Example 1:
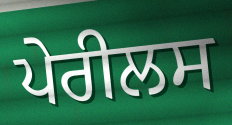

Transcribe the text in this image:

ਪੇਰੀਲਸ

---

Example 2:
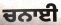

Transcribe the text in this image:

ਚਨਾਈ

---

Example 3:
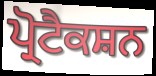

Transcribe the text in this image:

ਪ੍ਰੋਟੈਕਸ਼ਨ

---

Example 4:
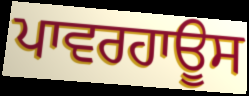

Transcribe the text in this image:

ਪਾਵਰਹਾਊਸ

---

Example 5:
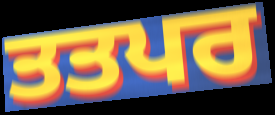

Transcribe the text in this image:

ਤਤਪਰ